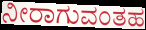
ನೀರಾಗುವಂತಹ